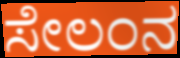
ಸೇಲಂನ